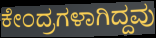
ಕೇಂದ್ರಗಳಾಗಿದ್ದವು